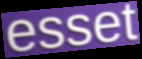
esset